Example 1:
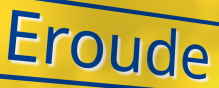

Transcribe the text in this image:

Eroude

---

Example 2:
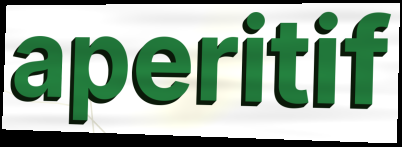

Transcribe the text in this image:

aperitif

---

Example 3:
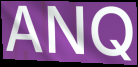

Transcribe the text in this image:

ANQ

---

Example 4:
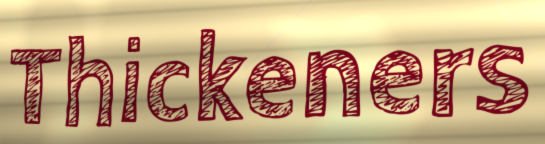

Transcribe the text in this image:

Thickeners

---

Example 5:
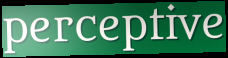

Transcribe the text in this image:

perceptive